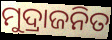
ମୁଦ୍ରାଜନିତ